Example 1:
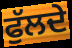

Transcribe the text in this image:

ਫੁੱਲਦੇ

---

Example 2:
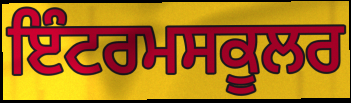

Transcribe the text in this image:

ਇੰਟਰਮਸਕੂਲਰ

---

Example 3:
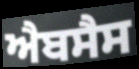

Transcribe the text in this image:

ਐਬਸੈਸ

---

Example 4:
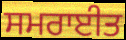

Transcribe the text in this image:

ਸਮਰਾਈਤ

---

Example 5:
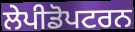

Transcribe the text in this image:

ਲੇਪੀਡੋਪਟਰਨ